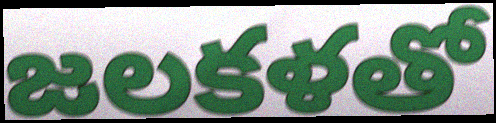
జలకళతో